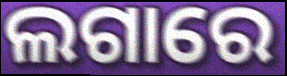
ଲଗାରେ